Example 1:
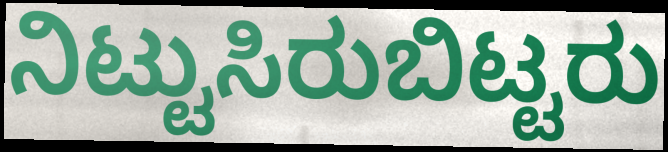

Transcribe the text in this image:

ನಿಟ್ಟುಸಿರುಬಿಟ್ಟರು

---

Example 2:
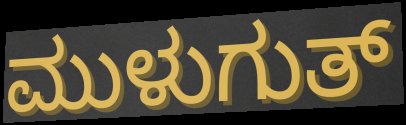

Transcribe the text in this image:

ಮುಳುಗುತ್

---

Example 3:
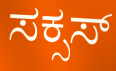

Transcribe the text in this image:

ಸಕ್ಸಸ್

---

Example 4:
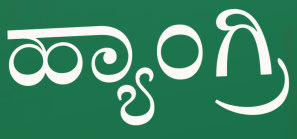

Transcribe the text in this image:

ಹ್ಯಾಂಗ್ರಿ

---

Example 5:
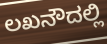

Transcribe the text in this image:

ಲಖನೌದಲ್ಲಿ